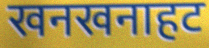
खनखनाहट